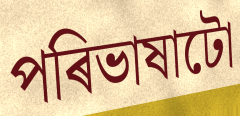
পৰিভাষাটো